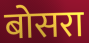
बोसरा